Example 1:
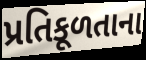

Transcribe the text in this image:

પ્રતિકૂળતાના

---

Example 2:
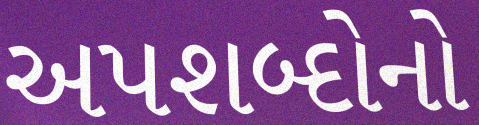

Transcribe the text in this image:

અપશબ્દોનો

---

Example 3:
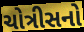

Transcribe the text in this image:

ચોત્રીસનો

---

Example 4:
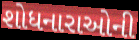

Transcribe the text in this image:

શોધનારાઓની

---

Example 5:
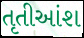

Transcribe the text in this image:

તૃતીઆંશ